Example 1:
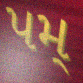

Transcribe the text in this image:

પમ્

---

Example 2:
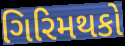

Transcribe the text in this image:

ગિરિમથકો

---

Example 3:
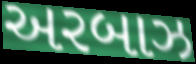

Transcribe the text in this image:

અરબાઝ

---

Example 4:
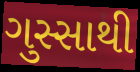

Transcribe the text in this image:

ગુસ્સાથી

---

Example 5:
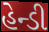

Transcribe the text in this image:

હેન્ડી